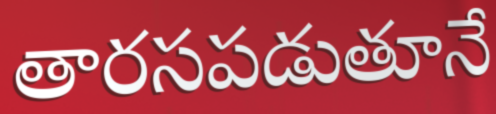
తారసపడుతూనే